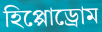
হিপ্পোড্রোম